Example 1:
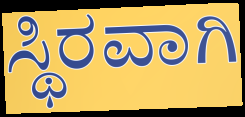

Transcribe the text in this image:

ಸ್ಥಿರವಾಗಿ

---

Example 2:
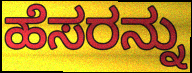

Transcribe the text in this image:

ಹೆಸರನ್ನು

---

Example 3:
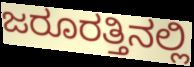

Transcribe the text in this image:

ಜರೂರತ್ತಿನಲ್ಲಿ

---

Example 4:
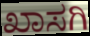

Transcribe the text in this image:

ಖಾಸಗಿ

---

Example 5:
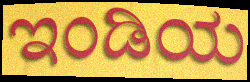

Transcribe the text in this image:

ಇಂಡಿಯ